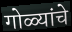
गोळ्यांचे